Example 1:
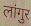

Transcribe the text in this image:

लांगुर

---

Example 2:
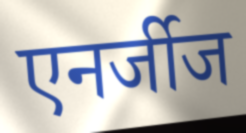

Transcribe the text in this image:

एनर्जीज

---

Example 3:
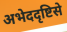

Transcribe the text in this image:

अभेददृष्टिसे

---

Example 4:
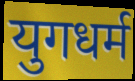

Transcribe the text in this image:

युगधर्म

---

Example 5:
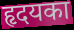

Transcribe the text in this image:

हृदयका